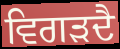
ਵਿਗੜਦੈ